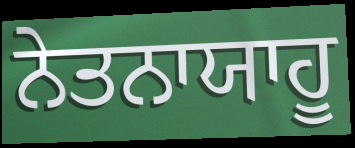
ਨੇਤਨਾਯਾਹੂ